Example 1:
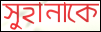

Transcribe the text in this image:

সুহানাকে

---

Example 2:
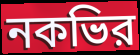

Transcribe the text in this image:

নকভির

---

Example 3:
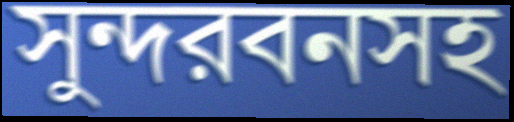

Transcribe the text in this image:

সুন্দরবনসহ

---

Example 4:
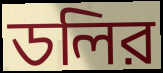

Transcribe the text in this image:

ডলির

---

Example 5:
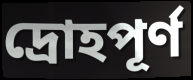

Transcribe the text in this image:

দ্রোহপূর্ণ